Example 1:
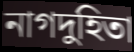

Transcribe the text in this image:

নাগদুহিতা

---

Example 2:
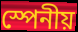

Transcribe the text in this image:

স্পেনীয়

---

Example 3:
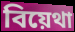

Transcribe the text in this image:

বিয়েথা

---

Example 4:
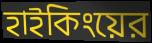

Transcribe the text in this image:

হাইকিংয়ের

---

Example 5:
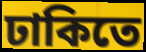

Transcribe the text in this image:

ঢাকিতে